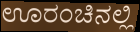
ಊರಂಚಿನಲ್ಲಿ